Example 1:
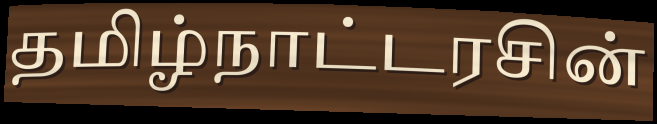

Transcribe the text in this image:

தமிழ்நாட்டரசின்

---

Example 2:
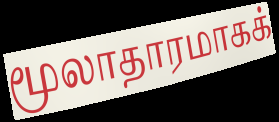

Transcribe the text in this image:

மூலாதாரமாகக்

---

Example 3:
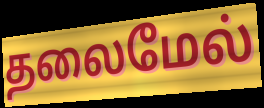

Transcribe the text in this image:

தலைமேல்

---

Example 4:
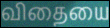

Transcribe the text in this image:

விதையை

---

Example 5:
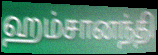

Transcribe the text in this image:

ஹம்சானந்தி